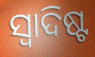
ସ୍ବାଦିଷ୍ଟ